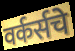
वर्कर्सचे